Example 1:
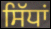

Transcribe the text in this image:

ਸਿੱਧਾਂ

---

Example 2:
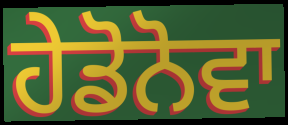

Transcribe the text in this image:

ਹੇਡੋਨੋਵਾ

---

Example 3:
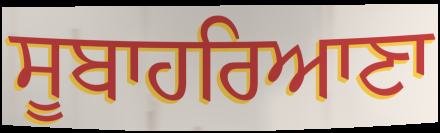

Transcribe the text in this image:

ਸੂਬਾਹਰਿਆਣਾ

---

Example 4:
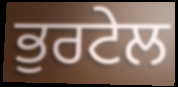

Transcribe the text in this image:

ਭੁਰਟੇਲ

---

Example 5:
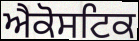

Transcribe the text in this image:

ਐਕੋਸਟਿਕ